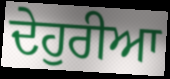
ਦੇਹੁਰੀਆ